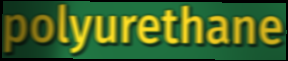
polyurethane